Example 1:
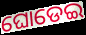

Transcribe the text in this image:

ଘୋଡେଇ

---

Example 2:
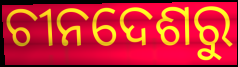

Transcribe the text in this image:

ଚୀନଦେଶରୁ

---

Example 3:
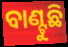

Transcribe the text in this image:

ବାଣ୍ଟୁଛି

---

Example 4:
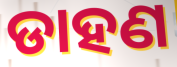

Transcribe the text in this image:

ଡାହଣ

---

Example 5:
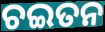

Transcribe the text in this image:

ଚଇତନ